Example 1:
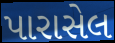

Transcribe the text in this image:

પારાસેલ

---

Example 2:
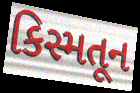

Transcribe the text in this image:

કિસ્મતૂન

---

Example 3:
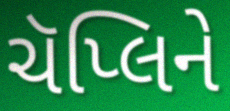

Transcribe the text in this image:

ચૅપ્લિને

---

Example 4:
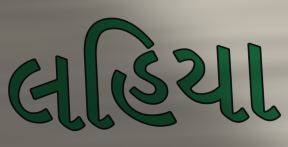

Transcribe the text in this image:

લહિયા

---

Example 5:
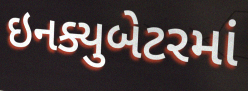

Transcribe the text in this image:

ઇનક્યુબેટરમાં